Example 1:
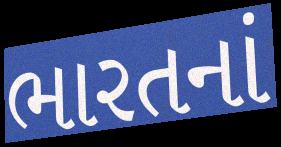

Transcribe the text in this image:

ભારતનાં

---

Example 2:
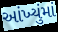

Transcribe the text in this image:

આંખ્યુંમાં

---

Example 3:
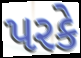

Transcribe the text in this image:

પરકે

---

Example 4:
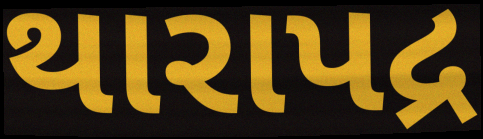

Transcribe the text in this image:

થારાપદ્ર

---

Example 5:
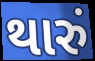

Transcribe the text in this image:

થારું